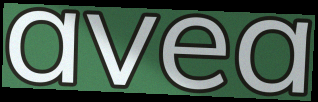
avea